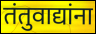
तंतुवाद्यांना